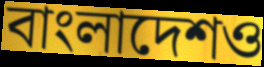
বাংলাদেশও